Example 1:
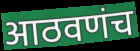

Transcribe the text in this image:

आठवणंच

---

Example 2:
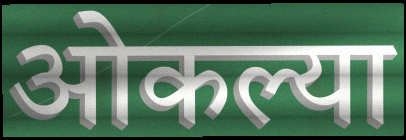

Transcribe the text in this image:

ओकल्या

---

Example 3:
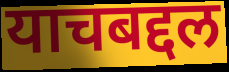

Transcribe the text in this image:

याचबद्दल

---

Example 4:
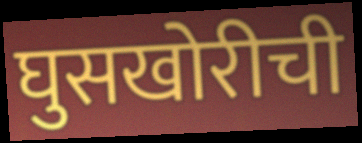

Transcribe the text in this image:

घुसखोरीची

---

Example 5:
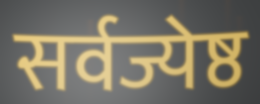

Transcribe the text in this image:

सर्वज्येष्ठ